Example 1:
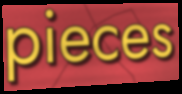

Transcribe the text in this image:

pieces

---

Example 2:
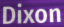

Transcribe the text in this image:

Dixon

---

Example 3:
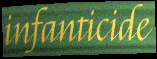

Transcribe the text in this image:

infanticide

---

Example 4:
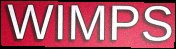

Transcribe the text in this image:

WIMPS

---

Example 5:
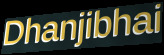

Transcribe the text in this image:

Dhanjibhai